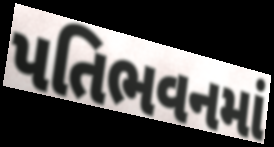
પતિભવનમાં